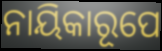
ନାୟିକାରୂପେ